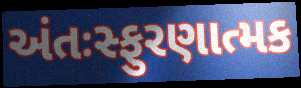
અંતઃસ્ફુરણાત્મક